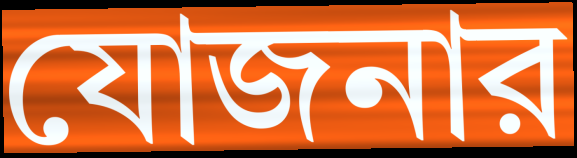
যোজনার